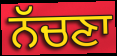
ਨੱਚਣਾ